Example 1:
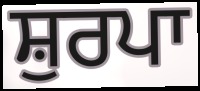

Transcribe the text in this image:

ਸ਼ੁਰਪਾ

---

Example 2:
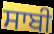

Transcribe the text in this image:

ਸਾਬੀ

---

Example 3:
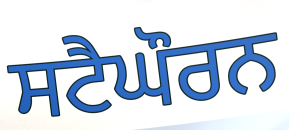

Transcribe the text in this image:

ਸਟੈਘੌਰਨ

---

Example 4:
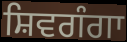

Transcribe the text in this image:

ਸ਼ਿਵਗੰਗਾ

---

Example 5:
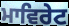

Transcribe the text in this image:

ਮਾਵਿਰੇਟ